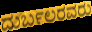
ದುರ್ಬಲರವರು